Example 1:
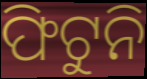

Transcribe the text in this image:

ଫିଟୁନି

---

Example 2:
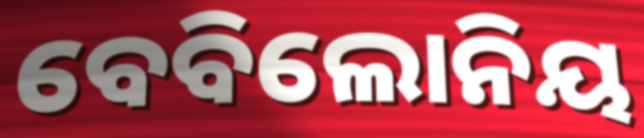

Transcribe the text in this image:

ବେବିଲୋନିୟ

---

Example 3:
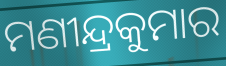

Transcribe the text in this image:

ମଣୀନ୍ଦ୍ରକୁମାର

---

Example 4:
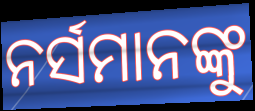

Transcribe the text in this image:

ନର୍ସମାନଙ୍କୁ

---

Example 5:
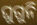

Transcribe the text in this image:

ଘୁଗୁନି